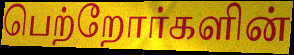
பெற்றோர்களின்